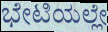
ಭೇಟಿಯಲ್ಲೇ